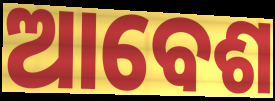
ଆବେଶ